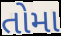
તોમા